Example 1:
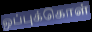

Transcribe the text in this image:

ஒப்புக்கொள்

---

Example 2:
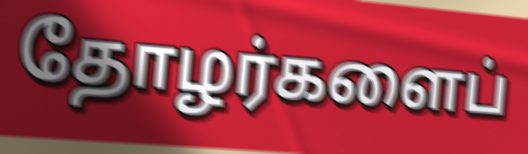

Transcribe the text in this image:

தோழர்களைப்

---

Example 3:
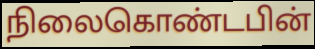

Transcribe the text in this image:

நிலைகொண்டபின்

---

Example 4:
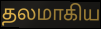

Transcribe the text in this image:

தலமாகிய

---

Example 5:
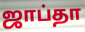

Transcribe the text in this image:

ஜாப்தா